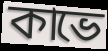
কাভে